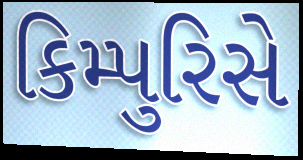
કિમ્પુરિસે